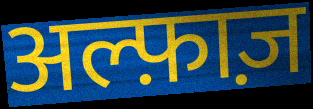
अल्फ़ाज़